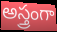
అస్త్రంగా